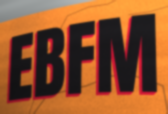
EBFM